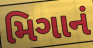
મિગાનં